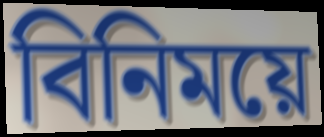
বিনিময়ে